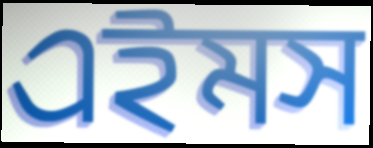
এইমস